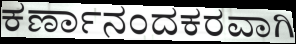
ಕರ್ಣಾನಂದಕರವಾಗಿ